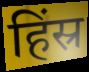
हिंस्र